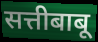
सत्तीबाबू